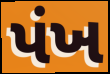
પંખ